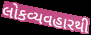
લોકવ્યવહારથી